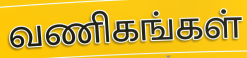
வணிகங்கள்